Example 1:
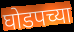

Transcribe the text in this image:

घोडपच्या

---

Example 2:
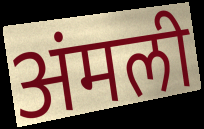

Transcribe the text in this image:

अंमली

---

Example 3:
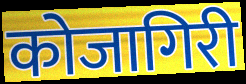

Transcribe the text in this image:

कोजागिरी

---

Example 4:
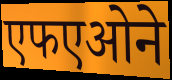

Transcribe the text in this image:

एफएओने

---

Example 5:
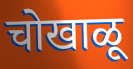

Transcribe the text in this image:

चोखाळू